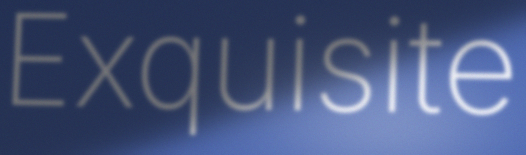
Exquisite